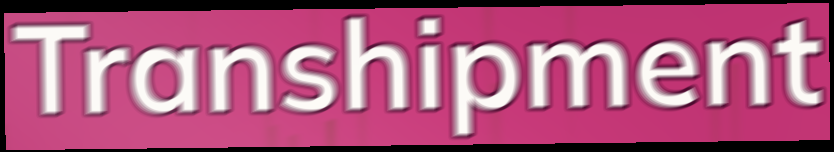
Transhipment